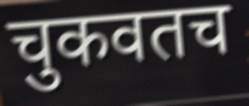
चुकवतच